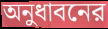
অনুধাবনের